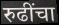
रुढींचा